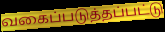
வகைப்படுத்தப்பட்டு